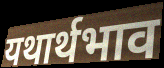
यथार्थभाव